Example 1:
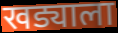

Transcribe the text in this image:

खड्याला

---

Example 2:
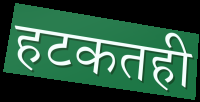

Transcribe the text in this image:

हटकतही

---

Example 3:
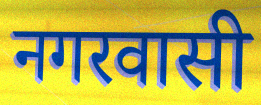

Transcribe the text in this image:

नगरवासी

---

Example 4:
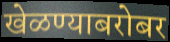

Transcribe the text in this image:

खेळण्याबरोबर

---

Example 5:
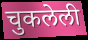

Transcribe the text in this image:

चुकलेली